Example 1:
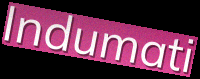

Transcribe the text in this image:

Indumati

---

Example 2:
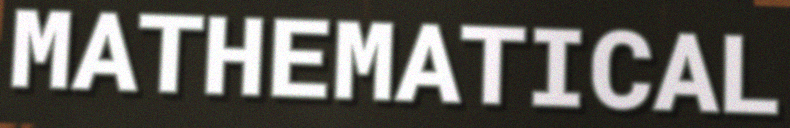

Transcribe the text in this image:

MATHEMATICAL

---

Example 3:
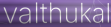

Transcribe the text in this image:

valthukal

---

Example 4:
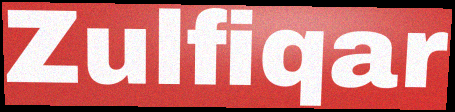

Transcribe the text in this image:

Zulfiqar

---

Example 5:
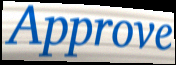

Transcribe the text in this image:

Approve